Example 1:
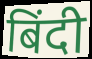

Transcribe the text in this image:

बिंदी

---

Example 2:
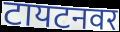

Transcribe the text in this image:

टायटनवर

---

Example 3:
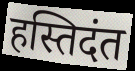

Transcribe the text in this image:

हस्तिदंत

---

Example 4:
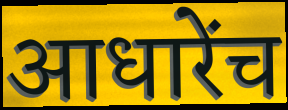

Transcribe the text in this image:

आधारेंच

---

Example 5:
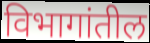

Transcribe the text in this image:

विभागांतील